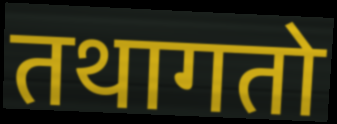
तथागतो